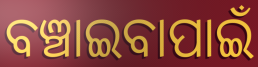
ବଞ୍ଚାଇବାପାଇଁ